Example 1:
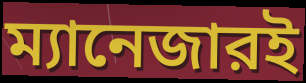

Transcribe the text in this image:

ম্যানেজারই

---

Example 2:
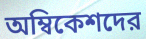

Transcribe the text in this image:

অম্বিকেশদের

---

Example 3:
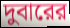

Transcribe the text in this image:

দুবারের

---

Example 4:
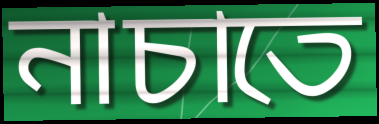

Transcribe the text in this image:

নাচাতে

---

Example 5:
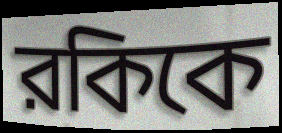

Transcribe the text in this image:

রকিকে